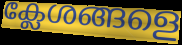
ക്ലേശങ്ങളെ